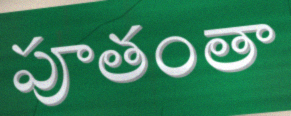
పూతంతా